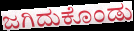
ಜಗಿದುಕೊಂಡು